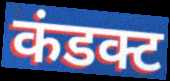
कंडक्ट